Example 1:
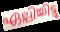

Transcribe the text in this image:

ഏല്പിച്ചിട്ടു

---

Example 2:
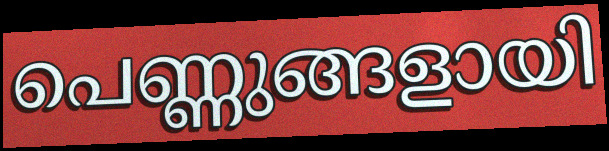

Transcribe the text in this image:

പെണ്ണുങ്ങളായി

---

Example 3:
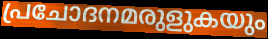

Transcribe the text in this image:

പ്രചോദനമരുളുകയും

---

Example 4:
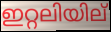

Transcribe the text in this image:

ഇറ്റലിയില്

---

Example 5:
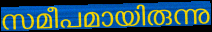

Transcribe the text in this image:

സമീപമായിരുന്നു